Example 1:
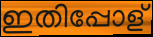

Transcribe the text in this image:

ഇതിപ്പോള്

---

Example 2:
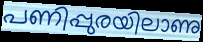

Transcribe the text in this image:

പണിപ്പുരയിലാണു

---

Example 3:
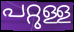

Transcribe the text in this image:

പറ്റുള്ള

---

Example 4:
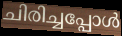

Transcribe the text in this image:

ചിരിച്ചപ്പോൾ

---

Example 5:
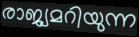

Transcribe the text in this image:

രാജ്യമറിയുന്ന